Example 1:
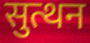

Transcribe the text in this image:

सुत्थन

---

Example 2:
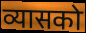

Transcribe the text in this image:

व्यासको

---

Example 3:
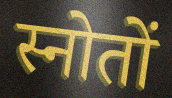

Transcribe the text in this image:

स्नोतों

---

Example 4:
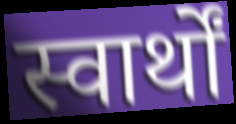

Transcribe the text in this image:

स्वार्थों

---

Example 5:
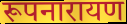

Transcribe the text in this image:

रूपनारायण